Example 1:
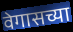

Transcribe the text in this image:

वेगासच्या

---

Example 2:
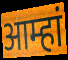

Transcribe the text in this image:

आम्हां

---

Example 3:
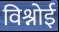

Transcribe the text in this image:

विश्नोई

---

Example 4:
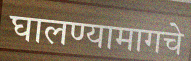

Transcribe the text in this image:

घालण्यामागचे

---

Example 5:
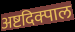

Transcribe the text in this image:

अष्टदिक्पाल